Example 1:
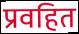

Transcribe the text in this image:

प्रवहित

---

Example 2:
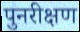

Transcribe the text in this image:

पुनरीक्षण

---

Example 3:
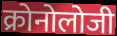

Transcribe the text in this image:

क्रोनोलोजी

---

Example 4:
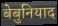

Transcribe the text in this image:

बेबुनियाद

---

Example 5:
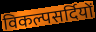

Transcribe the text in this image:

विकल्पसर्दियों